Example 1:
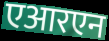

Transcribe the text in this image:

एआरएन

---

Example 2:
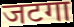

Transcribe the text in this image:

जटगा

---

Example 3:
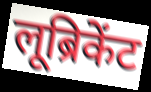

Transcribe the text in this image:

लूब्रिकेंट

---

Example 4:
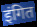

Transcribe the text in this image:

इंगित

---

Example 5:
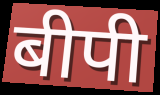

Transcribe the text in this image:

बीपी